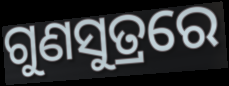
ଗୁଣସୁତ୍ରରେ